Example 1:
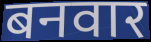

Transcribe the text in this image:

बनवार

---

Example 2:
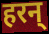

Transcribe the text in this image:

हरन्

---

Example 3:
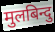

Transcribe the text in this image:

मुलबिन्दु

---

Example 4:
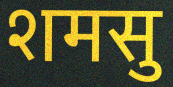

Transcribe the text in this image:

शमसु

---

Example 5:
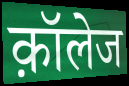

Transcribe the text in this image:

क़ॉलेज